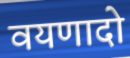
वयणादो